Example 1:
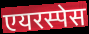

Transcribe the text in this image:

एयरस्पेस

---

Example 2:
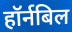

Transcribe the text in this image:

हॉर्नबिल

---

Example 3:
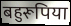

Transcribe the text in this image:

बहुरूपिया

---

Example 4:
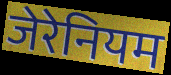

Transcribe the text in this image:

जेरेनियम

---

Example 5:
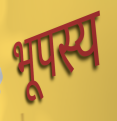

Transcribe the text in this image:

भूपस्य